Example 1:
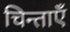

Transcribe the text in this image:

चिन्ताएँ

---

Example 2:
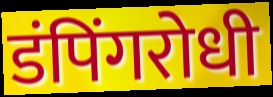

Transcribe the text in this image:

डंपिंगरोधी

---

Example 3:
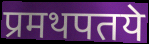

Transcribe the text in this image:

प्रमथपतये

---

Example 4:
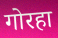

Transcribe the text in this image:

गोरहा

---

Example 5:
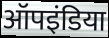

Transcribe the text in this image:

ऑपइंडिया